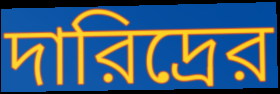
দারিদ্রের